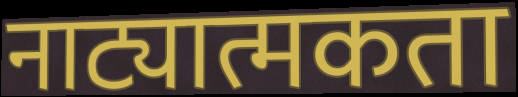
नाट्यात्मकता